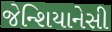
જેન્શિયાનેસી